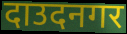
दाउदनगर